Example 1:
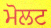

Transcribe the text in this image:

ਮੋਲਟ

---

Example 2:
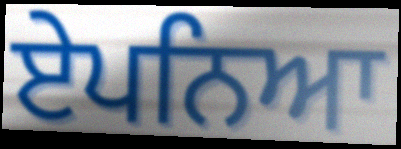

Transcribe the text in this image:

ਏਪਨਿਆ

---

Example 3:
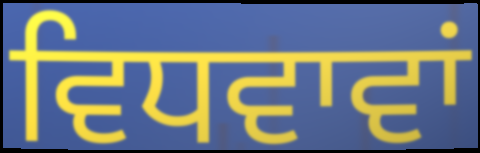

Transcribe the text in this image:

ਵਿਧਵਾਵਾਂ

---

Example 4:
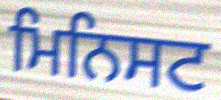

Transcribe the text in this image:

ਮਿਨਿਸਟ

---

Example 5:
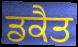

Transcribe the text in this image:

ਡਕੈਤ